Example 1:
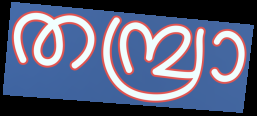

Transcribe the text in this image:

തമ്പ്രാ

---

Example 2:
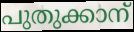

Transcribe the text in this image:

പുതുക്കാന്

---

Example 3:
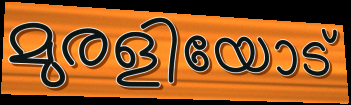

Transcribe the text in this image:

മുരളിയോട്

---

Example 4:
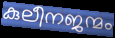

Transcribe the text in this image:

കുലീനജന്മം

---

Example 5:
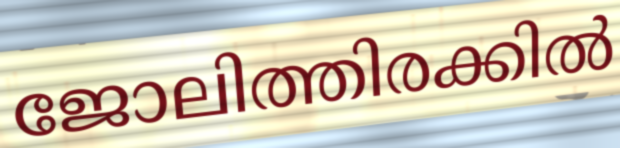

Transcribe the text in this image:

ജോലിത്തിരക്കിൽ